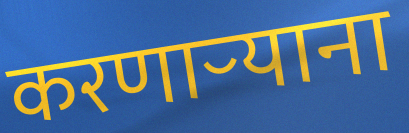
करणाऱ्याना